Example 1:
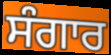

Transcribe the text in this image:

ਸੰਗਾਰ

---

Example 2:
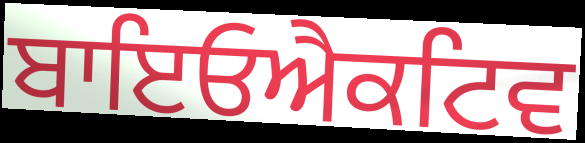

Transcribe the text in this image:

ਬਾਇਓਐਕਟਿਵ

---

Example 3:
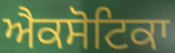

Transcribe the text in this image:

ਐਕਸੋਟਿਕਾ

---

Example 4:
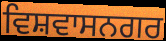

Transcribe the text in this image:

ਵਿਸ਼ਵਾਸਨਗਰ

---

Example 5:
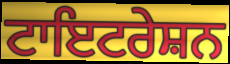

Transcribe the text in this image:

ਟਾਇਟਰੇਸ਼ਨ